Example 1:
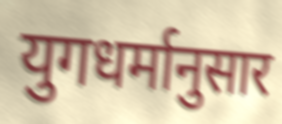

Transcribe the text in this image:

युगधर्मानुसार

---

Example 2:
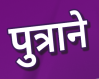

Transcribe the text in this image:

पुत्राने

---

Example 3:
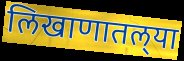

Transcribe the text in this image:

लिखाणातल्या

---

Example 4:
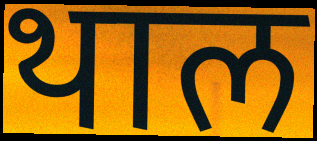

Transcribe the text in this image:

थाल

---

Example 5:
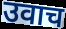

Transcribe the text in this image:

उवाच